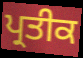
ਪ੍ਰਤੀਕ